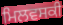
ਮਿਲਵਸਕੀ